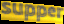
supper